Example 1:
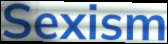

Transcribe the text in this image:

Sexism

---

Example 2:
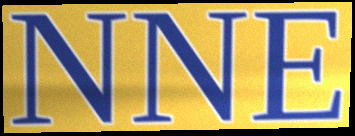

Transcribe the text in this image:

NNE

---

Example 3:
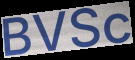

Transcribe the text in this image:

BVSc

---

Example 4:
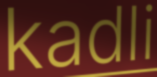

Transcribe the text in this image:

kadli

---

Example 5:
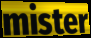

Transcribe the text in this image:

mister